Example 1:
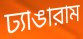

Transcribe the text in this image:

ঢ্যাঙারাম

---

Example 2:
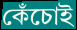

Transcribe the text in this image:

কেঁচোই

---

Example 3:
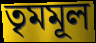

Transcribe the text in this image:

তৃমমূল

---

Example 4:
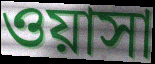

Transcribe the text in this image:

ওয়াসা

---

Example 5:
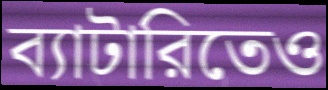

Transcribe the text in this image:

ব্যাটারিতেও